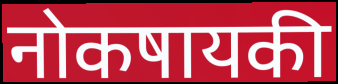
नोकषायकी